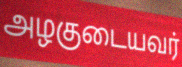
அழகுடையவர்